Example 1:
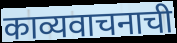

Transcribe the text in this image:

काव्यवाचनाची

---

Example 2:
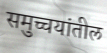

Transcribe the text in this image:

समुच्चयांतील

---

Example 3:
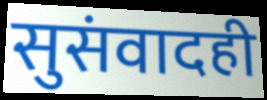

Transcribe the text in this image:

सुसंवादही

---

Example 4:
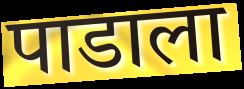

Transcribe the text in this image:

पाडाला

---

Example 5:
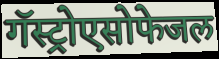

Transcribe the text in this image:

गॅस्ट्रोएसोफेजल